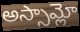
అస్సామ్లో